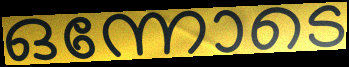
ഒന്നോടെ